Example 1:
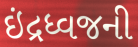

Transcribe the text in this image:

ઇંદ્રધ્વજની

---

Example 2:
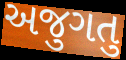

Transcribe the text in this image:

અજુગતુ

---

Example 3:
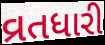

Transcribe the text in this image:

વ્રતધારી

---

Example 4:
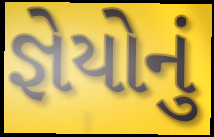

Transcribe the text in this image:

જ્ઞેયોનું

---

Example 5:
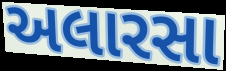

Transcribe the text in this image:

અલારસા